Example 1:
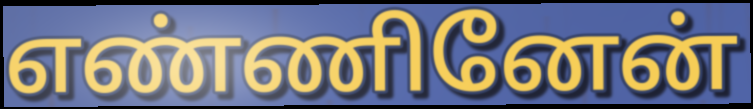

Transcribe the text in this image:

எண்ணினேன்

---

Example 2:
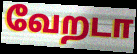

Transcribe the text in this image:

வேறடா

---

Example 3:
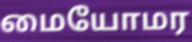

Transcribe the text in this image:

மையோமர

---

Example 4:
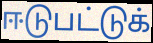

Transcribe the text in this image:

ஈடுபட்டுக்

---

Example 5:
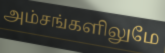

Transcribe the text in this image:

அம்சங்களிலுமே